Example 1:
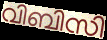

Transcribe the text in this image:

വിബിസി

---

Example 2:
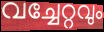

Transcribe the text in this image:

വച്ചേറ്റവും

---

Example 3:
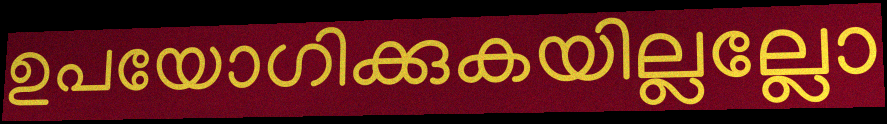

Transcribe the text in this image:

ഉപയോഗിക്കുകയില്ലല്ലോ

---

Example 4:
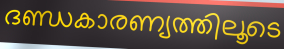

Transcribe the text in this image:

ദണ്ഡകാരണ്യത്തിലൂടെ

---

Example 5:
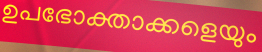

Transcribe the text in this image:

ഉപഭോക്താക്കളെയും